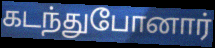
கடந்துபோனார்